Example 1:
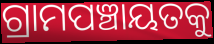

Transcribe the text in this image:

ଗ୍ରାମପଞ୍ଚାୟତକୁ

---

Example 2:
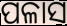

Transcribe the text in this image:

ପଳାସ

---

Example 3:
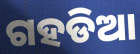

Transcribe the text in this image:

ଗହଡିଆ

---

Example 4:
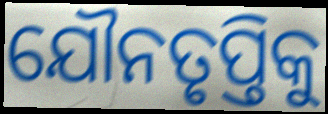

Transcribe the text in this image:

ଯୌନତୃପ୍ତିକୁ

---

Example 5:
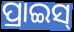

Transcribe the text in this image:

ପ୍ରାଇସ୍